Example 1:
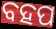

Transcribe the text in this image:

ବହପ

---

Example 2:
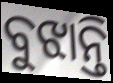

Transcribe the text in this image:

ବୁଝାନ୍ତି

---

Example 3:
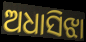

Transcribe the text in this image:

ଅଧାସିଝା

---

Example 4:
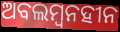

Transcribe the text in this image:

ଅବଲମ୍ବନହୀନ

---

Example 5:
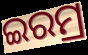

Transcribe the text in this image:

ଇରମ୍ର